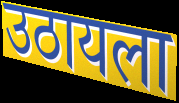
उठायला